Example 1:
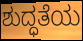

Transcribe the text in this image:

ಶುದ್ಧತೆಯ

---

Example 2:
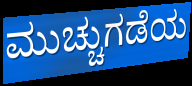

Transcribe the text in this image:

ಮುಚ್ಚುಗಡೆಯ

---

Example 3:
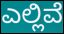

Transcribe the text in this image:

ಎಲ್ಲಿವೆ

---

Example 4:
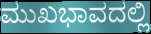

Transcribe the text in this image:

ಮುಖಭಾವದಲ್ಲಿ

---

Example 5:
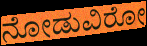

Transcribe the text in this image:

ನೋಡುವಿರೋ